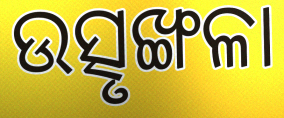
ଉତ୍ସୃଙ୍ଖଳା